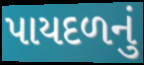
પાયદળનું